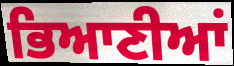
ਭਿਆਣੀਆਂ